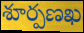
శూర్పణఖ